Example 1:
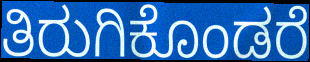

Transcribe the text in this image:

ತಿರುಗಿಕೊಂಡರೆ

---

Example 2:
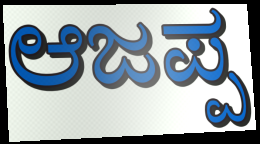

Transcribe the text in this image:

ಆಜಪ್ಪ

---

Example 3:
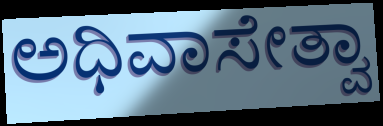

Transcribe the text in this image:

ಅಧಿವಾಸೇತ್ವಾ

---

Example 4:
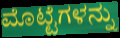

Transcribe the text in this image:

ಮೊಟ್ಟೆಗಳನ್ನು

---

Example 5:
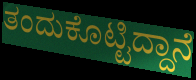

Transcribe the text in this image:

ತಂದುಕೊಟ್ಟಿದ್ದಾನೆ